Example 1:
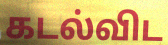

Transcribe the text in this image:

கடல்விட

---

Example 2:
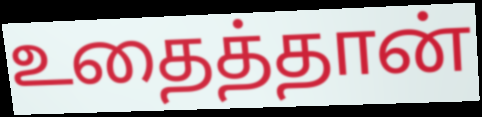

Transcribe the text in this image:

உதைத்தான்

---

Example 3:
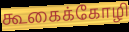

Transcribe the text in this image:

கூகைக்கோழி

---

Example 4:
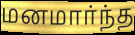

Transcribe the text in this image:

மனமார்ந்த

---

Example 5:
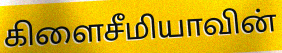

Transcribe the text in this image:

கிளைசீமியாவின்